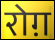
रोग़